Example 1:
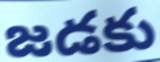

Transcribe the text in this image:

జడకు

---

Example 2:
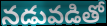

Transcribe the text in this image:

నడువడితో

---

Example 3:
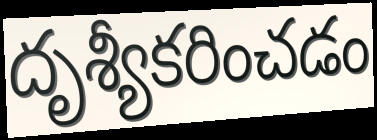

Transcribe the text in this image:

దృశ్యీకరించడం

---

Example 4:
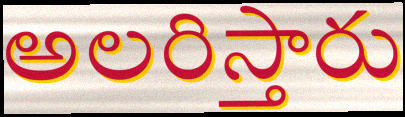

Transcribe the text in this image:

అలరిస్తారు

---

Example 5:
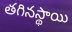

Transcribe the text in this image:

తగినస్థాయి